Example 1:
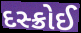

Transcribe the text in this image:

દસ્ક્રોઈ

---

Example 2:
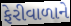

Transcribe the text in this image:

ફેરીવાળાને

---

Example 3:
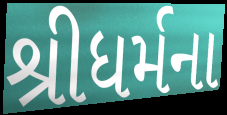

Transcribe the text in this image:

શ્રીધર્મના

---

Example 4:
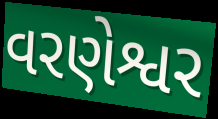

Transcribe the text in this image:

વરણેશ્વર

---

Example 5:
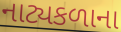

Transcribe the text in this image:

નાટ્યકળાના